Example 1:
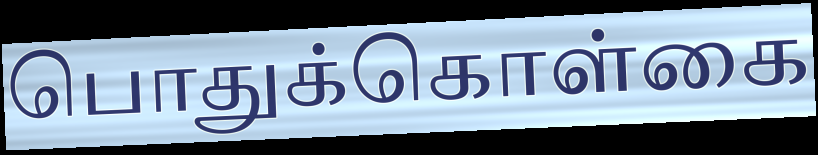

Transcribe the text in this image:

பொதுக்கொள்கை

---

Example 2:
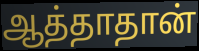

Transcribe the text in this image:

ஆத்தாதான்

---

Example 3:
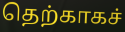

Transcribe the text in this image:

தெற்காகச்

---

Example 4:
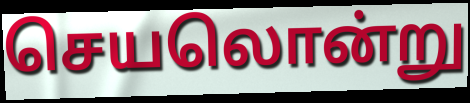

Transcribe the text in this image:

செயலொன்று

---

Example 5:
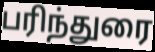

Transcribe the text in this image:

பரிந்துரை